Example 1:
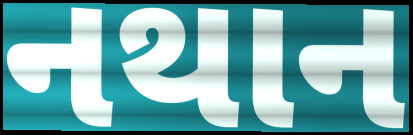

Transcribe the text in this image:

નથાન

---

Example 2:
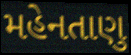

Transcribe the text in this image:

મહેનતાણુ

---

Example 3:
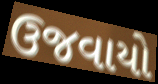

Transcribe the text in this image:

ઉજવાયો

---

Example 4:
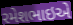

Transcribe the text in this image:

રમેશભાઇએ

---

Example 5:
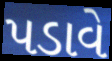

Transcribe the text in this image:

પડાવે